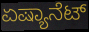
ಏಷ್ಯಾನೆಟ್